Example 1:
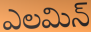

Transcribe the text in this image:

ఎలమిన్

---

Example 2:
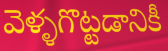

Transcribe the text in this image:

వెళ్ళగొట్టడానికీ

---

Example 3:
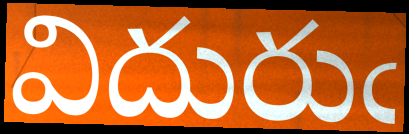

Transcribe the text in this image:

విదురుఁ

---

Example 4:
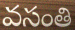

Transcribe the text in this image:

వసంతి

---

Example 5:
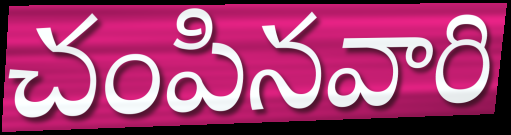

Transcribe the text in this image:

చంపినవారి